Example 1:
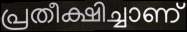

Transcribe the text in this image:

പ്രതീക്ഷിച്ചാണ്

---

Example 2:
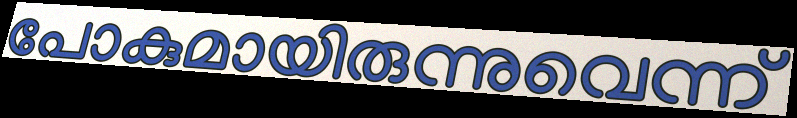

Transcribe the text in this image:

പോകുമായിരുന്നുവെന്ന്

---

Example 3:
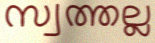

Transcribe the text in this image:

സ്വത്തല്ല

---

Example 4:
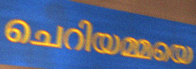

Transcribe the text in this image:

ചെറിയമ്മയെ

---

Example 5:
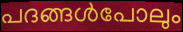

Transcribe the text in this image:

പദങ്ങൾപോലും